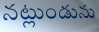
నట్లుండును